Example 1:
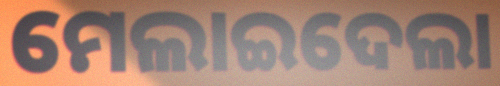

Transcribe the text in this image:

ମେଲାଇଦେଲା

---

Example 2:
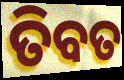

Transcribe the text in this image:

ତିବତ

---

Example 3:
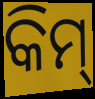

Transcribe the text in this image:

କିମ୍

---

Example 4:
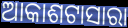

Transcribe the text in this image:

ଆକାଶଟାସାରା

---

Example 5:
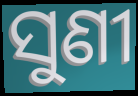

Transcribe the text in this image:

ସୁଣୀ